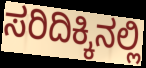
ಸರಿದಿಕ್ಕಿನಲ್ಲಿ